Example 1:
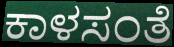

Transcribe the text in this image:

ಕಾಳಸಂತೆ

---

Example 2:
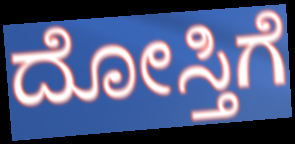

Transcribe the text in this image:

ದೋಸ್ತಿಗೆ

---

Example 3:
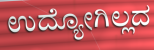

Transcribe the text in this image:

ಉದ್ಯೋಗಿಲ್ಲದ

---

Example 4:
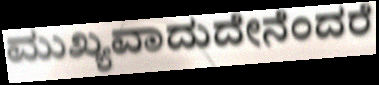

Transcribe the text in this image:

ಮುಖ್ಯವಾದುದೇನೆಂದರೆ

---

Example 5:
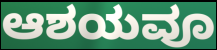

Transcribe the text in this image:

ಆಶಯವೂ